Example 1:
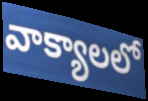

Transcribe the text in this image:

వాక్యాలలో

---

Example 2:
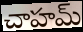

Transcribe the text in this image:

చాహమ్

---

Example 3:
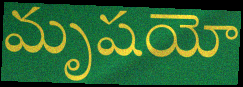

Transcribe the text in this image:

మృషయో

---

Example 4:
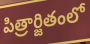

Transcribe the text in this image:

పిత్రార్జితంలో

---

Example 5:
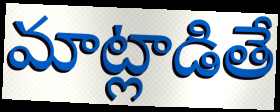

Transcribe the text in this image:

మాట్లాడితే